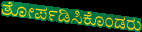
ತೋರ್ಪಡಿಸಿಕೊಂಡರು